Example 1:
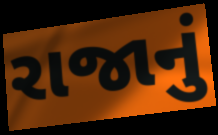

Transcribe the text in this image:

રાજાનું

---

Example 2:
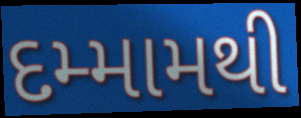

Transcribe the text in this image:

દમ્મામથી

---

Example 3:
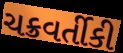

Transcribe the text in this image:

ચક્રવર્તીકી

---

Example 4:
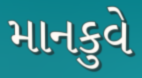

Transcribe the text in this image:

માનકુવે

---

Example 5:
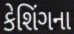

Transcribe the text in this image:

કેશિંગના